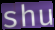
shu